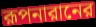
রূপনারানের